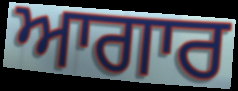
ਆਗਾਰ